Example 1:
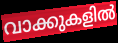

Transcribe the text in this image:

വാക്കുകളിൽ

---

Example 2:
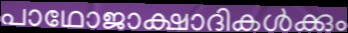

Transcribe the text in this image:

പാഥോജാക്ഷാദികൾക്കും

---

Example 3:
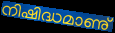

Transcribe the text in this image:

നിഷിദ്ധമാണു്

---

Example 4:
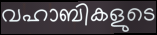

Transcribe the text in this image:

വഹാബികളുടെ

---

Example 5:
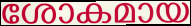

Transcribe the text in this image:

ശോകമായ